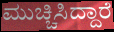
ಮುಚ್ಚಿಸಿದ್ದಾರೆ